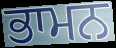
ਭਾਮਨ